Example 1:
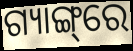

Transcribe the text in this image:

ଗ୍ୟାଙ୍ଗ୍‌ରେ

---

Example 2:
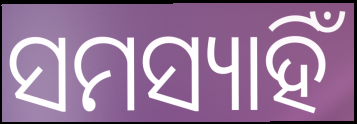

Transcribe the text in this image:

ସମସ୍ୟାହିଁ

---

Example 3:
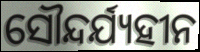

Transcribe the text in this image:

ସୌନ୍ଦର୍ଯ୍ୟହୀନ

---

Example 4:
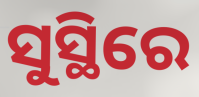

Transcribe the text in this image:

ସୁସ୍ଥିରେ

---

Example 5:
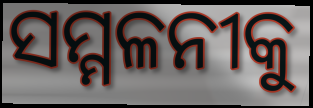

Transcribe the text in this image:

ସମ୍ମଳନୀକୁ